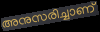
അനുസരിച്ചാണ്